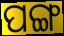
ପଙ୍ଗ